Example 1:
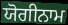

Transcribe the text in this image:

ਯੋਗੀਨਾਮ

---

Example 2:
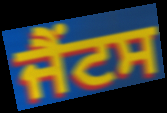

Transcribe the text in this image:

ਜੈਂਟਸ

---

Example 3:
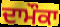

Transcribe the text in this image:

ਦਾਮੌਕਾ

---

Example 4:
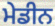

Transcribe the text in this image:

ਮੇਡੀਨ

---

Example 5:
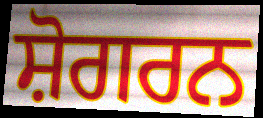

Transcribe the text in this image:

ਸ਼ੋਗਰਨ